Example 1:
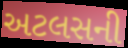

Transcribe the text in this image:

અટલસની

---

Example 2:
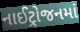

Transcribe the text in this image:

નાઈટ્રોજનમાં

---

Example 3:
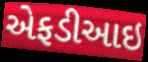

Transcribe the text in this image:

એફડીઆઇ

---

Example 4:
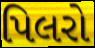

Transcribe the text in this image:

પિલરો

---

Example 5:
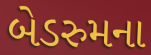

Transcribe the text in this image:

બેડરુમના